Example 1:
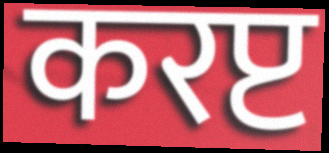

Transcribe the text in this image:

करप्ट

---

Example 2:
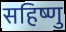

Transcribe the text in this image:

सहिष्णु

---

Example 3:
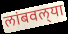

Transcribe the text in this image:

लांबवल्या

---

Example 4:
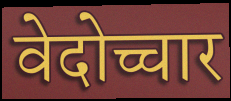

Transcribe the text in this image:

वेदोच्चार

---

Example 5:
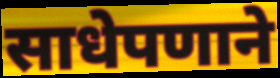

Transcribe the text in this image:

साधेपणाने